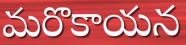
మరొకాయన